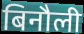
बिनौली